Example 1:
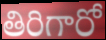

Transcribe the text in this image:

తిరిగారో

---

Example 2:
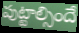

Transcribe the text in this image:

పుట్టాల్సిందే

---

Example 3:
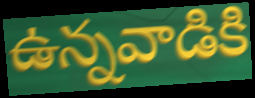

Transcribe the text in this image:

ఉన్నవాడికి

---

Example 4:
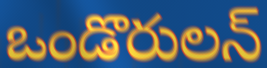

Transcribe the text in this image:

ఒండొరులన్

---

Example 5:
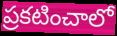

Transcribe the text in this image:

ప్రకటించాలో